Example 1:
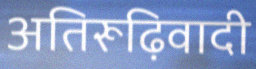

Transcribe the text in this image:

अतिरूढ़िवादी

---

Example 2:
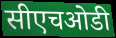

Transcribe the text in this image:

सीएचओडी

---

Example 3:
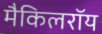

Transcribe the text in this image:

मैकिलरॉय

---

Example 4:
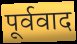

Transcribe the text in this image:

पूर्ववाद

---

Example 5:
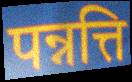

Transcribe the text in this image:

पन्नत्ति